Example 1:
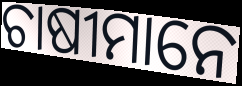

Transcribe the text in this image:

ଚାଷୀମାନେ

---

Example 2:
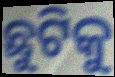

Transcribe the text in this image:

ଛୁଟିକୁ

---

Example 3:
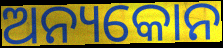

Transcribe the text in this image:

ଅନ୍ୟକୋନ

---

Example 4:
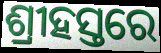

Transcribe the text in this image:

ଶ୍ରୀହସ୍ତରେ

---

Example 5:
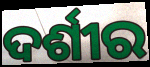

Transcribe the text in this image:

ଦର୍ଶୀର